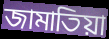
জামাতিয়া